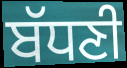
ਬੱਧਣੀ